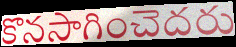
కొనసాగించెదరు